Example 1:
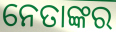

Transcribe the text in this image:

ନେତାଙ୍କର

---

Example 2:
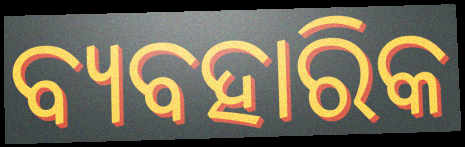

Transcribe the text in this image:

ବ୍ଯବହାରିକ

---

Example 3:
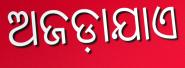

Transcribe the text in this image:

ଅଜଡ଼ାଯାଏ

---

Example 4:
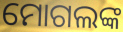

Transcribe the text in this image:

ମୋଗଲଙ୍କ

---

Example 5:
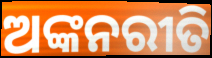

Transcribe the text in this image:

ଅଙ୍କନରୀତି